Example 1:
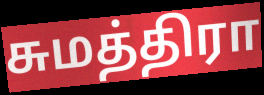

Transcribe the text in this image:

சுமத்திரா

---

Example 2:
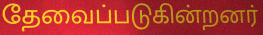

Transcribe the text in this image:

தேவைப்படுகின்றனர்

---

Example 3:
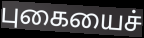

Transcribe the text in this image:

புகையைச்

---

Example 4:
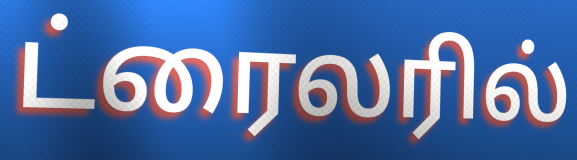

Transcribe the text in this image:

ட்ரைலரில்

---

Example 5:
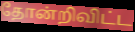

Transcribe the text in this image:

தோன்றிவிட்ட